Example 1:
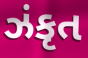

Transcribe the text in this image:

ઝંકૃત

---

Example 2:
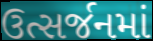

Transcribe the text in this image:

ઉત્સર્જનમાં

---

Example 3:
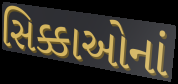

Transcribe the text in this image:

સિક્કાઓનાં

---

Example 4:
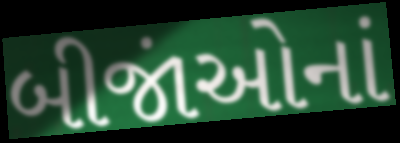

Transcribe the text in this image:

બીજાંઓનાં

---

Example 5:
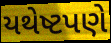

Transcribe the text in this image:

યથેષ્ટપણે